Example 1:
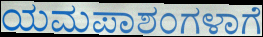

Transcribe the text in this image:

ಯಮಪಾಶಂಗಳಾಗೆ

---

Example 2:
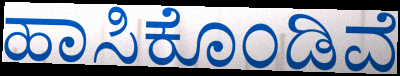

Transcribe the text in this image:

ಹಾಸಿಕೊಂಡಿವೆ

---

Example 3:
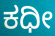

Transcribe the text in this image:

ಕಧೀ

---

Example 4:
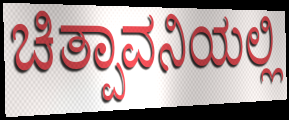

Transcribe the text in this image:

ಚಿತ್ಪಾವನಿಯಲ್ಲಿ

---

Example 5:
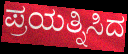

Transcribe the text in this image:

ಪ್ರಯತ್ನಿಸಿದ